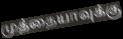
முத்தையாவுக்கு